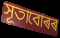
সূতাবোৰৰ